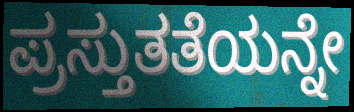
ಪ್ರಸ್ತುತತೆಯನ್ನೇ